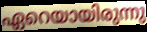
ഏറെയായിരുന്നു